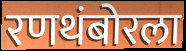
रणथंबोरला